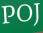
POJ